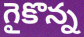
గైకొన్న